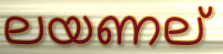
ലയണല്